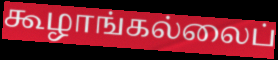
கூழாங்கல்லைப்